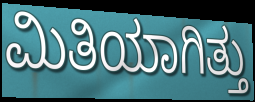
ಮಿತಿಯಾಗಿತ್ತು